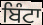
ਬਿੰਟਾ